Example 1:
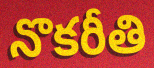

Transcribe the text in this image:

నొకరీతి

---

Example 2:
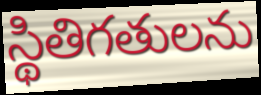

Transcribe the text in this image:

స్థితిగతులను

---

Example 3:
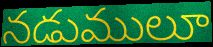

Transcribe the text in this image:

నడుములూ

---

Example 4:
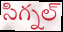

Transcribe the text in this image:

సిగ్నల్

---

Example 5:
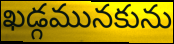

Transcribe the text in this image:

ఖడ్గమునకును